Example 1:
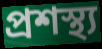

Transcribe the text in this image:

প্ৰশস্থ্য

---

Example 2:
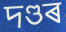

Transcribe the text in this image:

দণ্ডৰ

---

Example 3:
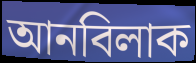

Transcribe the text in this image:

আনবিলাক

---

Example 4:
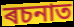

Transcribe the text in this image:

ৰচনাত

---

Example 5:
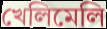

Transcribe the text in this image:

খেলিমেলি